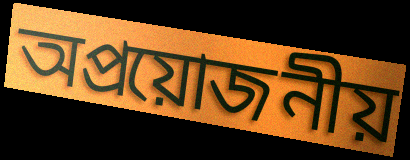
অপ্রয়োজনীয়